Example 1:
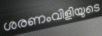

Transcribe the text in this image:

ശരണംവിളിയുടെ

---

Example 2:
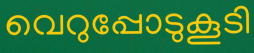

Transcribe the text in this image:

വെറുപ്പോടുകൂടി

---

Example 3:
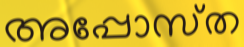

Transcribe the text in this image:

അപ്പോസ്‌ത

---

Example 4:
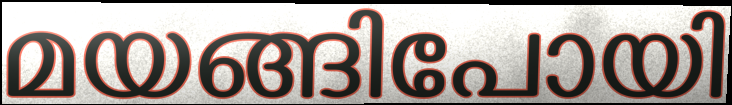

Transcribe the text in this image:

മയങ്ങിപോയി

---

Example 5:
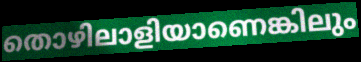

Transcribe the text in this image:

തൊഴിലാളിയാണെങ്കിലും